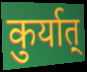
कुर्यात्